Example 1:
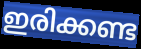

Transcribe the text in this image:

ഇരിക്കണ്ട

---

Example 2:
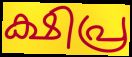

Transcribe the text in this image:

ക്ഷിപ്ര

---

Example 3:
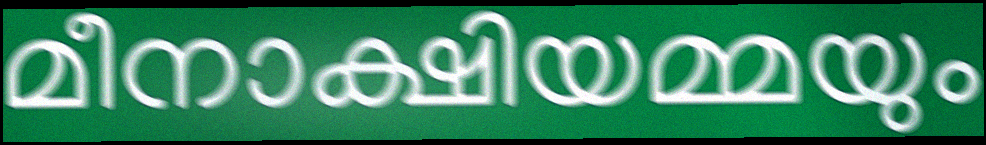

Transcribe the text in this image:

മീനാക്ഷിയമ്മയും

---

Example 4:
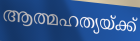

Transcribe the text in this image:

ആത്മഹത്യയ്ക്ക്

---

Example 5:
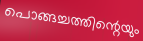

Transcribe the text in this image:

പൊങ്ങച്ചത്തിന്റെയും